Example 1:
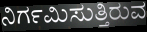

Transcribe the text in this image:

ನಿರ್ಗಮಿಸುತ್ತಿರುವ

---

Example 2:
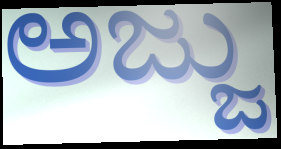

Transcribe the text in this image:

ಅಜ್ಜು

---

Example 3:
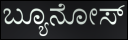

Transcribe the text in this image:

ಬ್ಯೂನೋಸ್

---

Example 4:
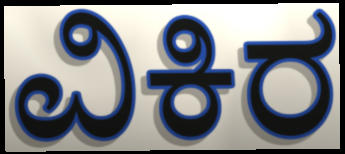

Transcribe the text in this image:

ವಿಕಿರ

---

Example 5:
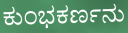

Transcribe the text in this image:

ಕುಂಭಕರ್ಣನು